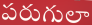
పరుగులా